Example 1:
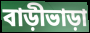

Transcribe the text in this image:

বাড়ীভাড়া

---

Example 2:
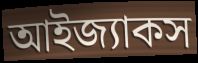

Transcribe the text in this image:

আইজ্যাকস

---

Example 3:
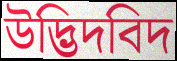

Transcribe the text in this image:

উদ্ভিদবিদ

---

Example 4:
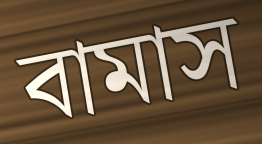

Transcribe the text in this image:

বামাস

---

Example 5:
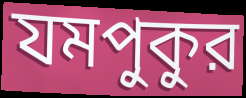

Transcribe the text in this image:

যমপুকুর